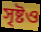
সৃষ্টও